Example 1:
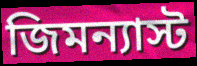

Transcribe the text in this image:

জিমন্যাস্ট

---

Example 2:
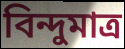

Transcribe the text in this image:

বিন্দুমাত্র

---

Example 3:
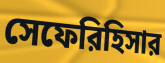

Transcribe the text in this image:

সেফেরিহিসার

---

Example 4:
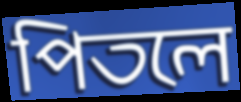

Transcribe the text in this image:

পিতলে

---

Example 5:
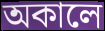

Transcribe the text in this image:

অকালে